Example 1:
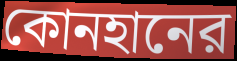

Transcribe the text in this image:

কোনহানের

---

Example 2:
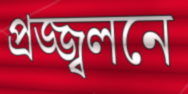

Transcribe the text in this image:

প্রজ্জ্বলনে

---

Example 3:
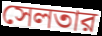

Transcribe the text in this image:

সেলতার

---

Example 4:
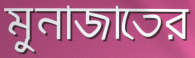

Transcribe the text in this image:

মুনাজাতের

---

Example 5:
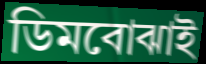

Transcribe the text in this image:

ডিমবোঝাই